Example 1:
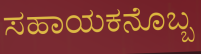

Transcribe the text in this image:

ಸಹಾಯಕನೊಬ್ಬ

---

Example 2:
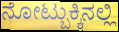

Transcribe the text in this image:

ನೋಟ್ಬುಕ್ಕಿನಲ್ಲಿ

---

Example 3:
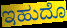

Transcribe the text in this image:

ಇಹುದೊ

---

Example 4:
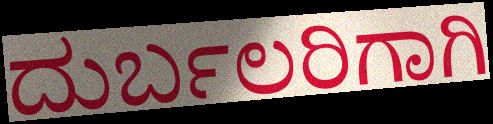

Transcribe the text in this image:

ದುರ್ಬಲರಿಗಾಗಿ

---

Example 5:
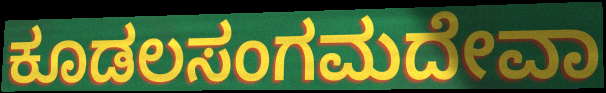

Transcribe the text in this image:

ಕೂಡಲಸಂಗಮದೇವಾ